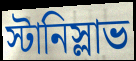
স্টানিস্লাভ